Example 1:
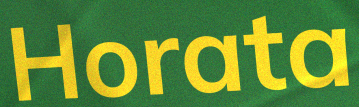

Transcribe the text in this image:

Horata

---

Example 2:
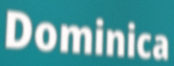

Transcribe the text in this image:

Dominica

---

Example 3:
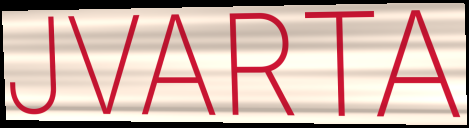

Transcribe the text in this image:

JVARTA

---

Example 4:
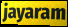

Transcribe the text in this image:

jayaram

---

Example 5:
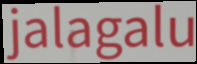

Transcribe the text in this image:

jalagalu